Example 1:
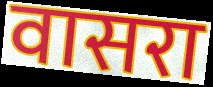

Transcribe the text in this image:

वासरा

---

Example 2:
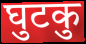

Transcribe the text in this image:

घुटकु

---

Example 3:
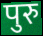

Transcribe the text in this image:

पुरु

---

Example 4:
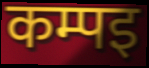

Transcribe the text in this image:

कम्पइ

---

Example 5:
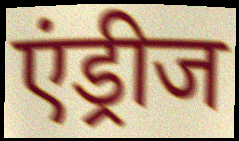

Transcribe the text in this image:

एंड्रीज